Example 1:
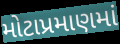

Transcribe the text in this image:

મોટાપ્રમાણમાં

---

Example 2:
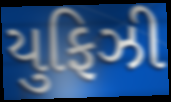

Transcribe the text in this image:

યુફિઝી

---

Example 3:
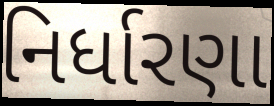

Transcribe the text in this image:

નિર્ધારણા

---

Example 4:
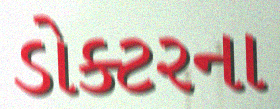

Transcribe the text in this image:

ડોક્ટરના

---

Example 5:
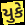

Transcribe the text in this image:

યુકે